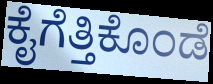
ಕೈಗೆತ್ತಿಕೊಂಡೆ